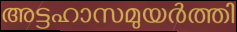
അട്ടഹാസമുയർത്തി